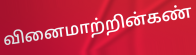
வினைமாற்றின்கண்